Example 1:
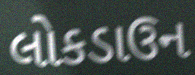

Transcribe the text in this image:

લોકડાઉન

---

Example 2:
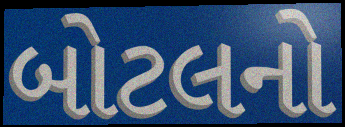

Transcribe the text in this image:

બોટલનો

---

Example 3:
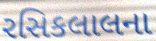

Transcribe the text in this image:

રસિકલાલના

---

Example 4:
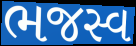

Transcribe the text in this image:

ભજસ્વ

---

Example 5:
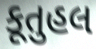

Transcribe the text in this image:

કૂતુહલ